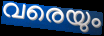
വരെയും